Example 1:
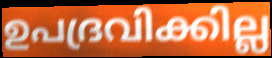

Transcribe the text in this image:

ഉപദ്രവിക്കില്ല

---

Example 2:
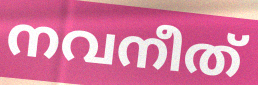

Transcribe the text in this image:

നവനീത്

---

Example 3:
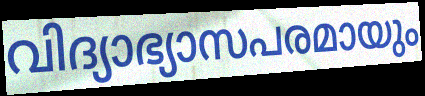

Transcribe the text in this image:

വിദ്യാഭ്യാസപരമായും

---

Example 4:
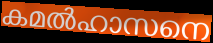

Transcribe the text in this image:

കമൽഹാസനെ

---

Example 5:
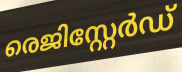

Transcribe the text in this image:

രെജിസ്റ്റേർഡ്